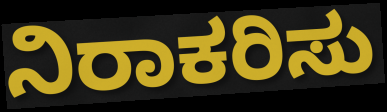
ನಿರಾಕರಿಸು